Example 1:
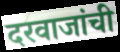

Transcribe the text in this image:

दरवाजांची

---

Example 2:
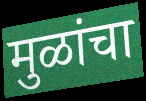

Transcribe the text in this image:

मुळांचा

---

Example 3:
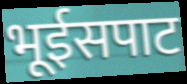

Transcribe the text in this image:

भूईसपाट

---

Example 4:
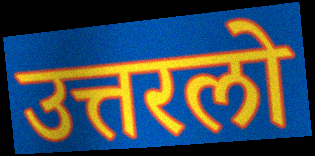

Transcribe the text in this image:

उत्तरलो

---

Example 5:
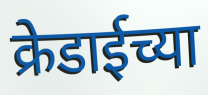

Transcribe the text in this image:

क्रेडाईच्या